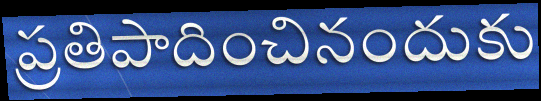
ప్రతిపాదించినందుకు